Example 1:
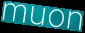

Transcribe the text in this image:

muon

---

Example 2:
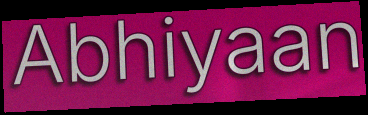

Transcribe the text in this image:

Abhiyaan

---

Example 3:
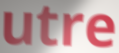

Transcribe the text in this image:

utre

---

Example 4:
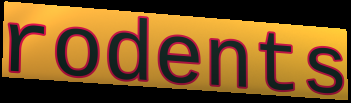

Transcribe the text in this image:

rodents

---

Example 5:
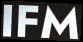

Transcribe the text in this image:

IFM